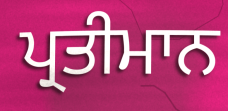
ਪ੍ਰਤੀਮਾਨ